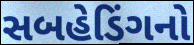
સબહેડિંગનો